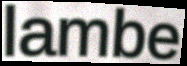
lambe